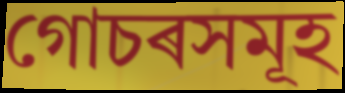
গোচৰসমূহ